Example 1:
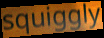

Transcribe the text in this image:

squiggly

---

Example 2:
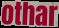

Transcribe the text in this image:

othar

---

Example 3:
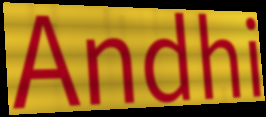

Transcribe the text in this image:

Andhi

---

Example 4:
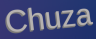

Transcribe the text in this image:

Chuza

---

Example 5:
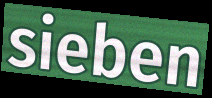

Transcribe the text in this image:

sieben